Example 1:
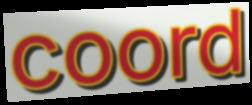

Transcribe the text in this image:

coord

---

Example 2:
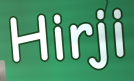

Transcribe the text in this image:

Hirji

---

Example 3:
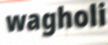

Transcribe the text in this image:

wagholi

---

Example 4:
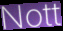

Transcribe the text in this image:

Nott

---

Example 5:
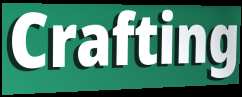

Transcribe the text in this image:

Crafting